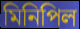
মিনিপিল